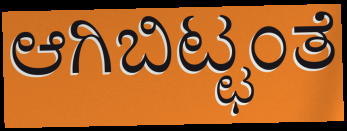
ಆಗಿಬಿಟ್ಟಂತೆ